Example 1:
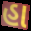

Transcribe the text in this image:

હા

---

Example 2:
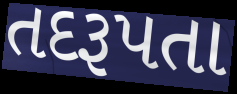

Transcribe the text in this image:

તદરૂપતા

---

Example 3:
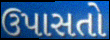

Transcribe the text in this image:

ઉપાસતો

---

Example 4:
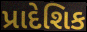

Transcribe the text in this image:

પ્રાદેશિક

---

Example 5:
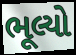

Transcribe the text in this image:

ભૂલ્યો